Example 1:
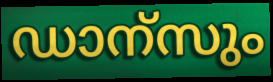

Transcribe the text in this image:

ഡാന്സും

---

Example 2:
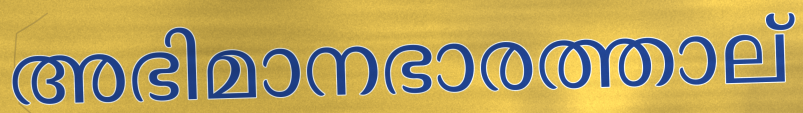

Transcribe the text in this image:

അഭിമാനഭാരത്താല്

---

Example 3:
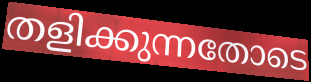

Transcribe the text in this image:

തളിക്കുന്നതോടെ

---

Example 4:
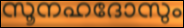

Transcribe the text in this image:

സൂനഹദോസും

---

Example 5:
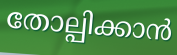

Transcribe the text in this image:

തോല്പിക്കാൻ